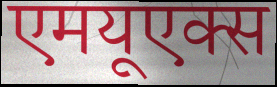
एमयूएक्स